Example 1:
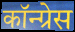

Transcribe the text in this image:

कॉन्ग्रेस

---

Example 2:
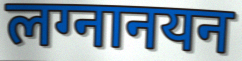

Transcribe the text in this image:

लग्नानयन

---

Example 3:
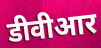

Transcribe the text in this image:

डीवीआर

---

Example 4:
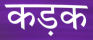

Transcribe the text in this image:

कड़क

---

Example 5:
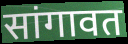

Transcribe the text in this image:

सांगावत